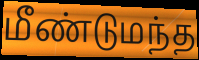
மீண்டுமந்த